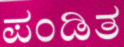
ಪಂಡಿತ